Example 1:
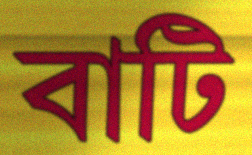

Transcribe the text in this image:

বাটি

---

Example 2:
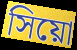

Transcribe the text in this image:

সিয়ো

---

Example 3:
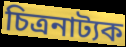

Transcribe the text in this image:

চিত্ৰনাট্যক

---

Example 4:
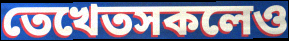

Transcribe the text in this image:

তেখেতসকলেও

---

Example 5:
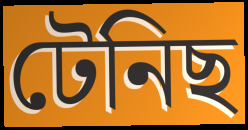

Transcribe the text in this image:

টেনিছ